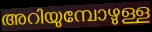
അറിയുമ്പോഴുള്ള